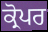
ਕ੍ਰੋਪਰ